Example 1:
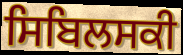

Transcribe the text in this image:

ਸਿਬਿਲਸਕੀ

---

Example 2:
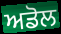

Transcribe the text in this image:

ਅਡੋਲ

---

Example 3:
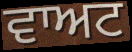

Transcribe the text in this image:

ਵਾਅਟ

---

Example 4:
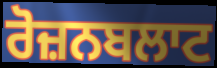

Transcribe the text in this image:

ਰੋਜ਼ਨਬਲਾਟ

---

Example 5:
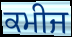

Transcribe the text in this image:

ਕਮੀਜ